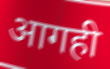
आगही